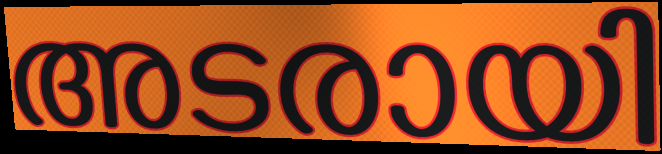
അടരായി